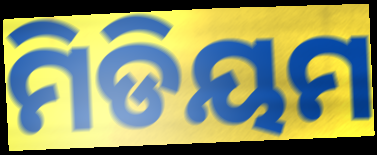
ମିଡିୟମ